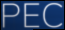
PEC